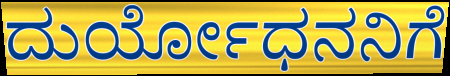
ದುರ್ಯೋಧನನಿಗೆ